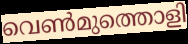
വെൺമുത്തൊളി